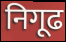
निगूढ